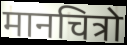
मानचित्रो